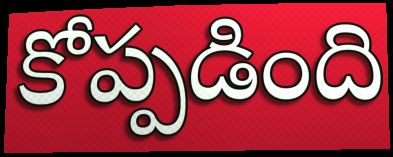
కోప్పడింది